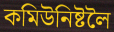
কমিউনিষ্টলৈ